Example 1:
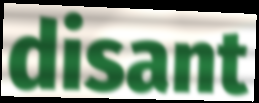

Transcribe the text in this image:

disant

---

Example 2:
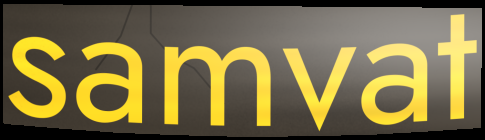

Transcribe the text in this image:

samvat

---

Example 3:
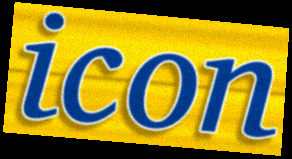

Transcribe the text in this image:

icon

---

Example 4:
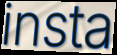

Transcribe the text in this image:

insta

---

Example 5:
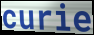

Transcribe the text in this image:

curie